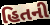
હિતની